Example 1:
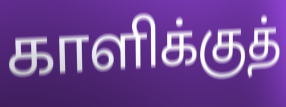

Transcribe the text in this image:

காளிக்குத்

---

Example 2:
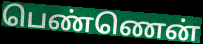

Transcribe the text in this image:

பெண்ணென்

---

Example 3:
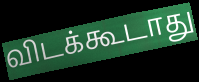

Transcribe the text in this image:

விடக்கூடாது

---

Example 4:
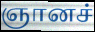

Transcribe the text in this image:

ஞானச்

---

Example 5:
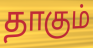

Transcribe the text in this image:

தாகும்